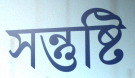
সন্তুষ্টি